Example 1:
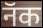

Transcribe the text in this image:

नॅक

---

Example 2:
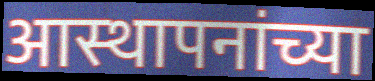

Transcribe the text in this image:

आस्थापनांच्या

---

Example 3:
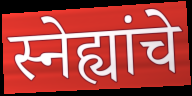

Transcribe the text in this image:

स्नेह्यांचे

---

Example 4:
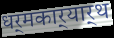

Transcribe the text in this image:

धर्मकार्यार्थ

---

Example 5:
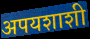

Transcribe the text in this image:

अपयशाशी